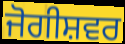
ਜੋਗੀਸ਼ਵਰ